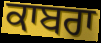
ਕਾਬਰਾ